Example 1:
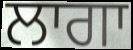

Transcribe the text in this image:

ਲਾਗਾ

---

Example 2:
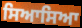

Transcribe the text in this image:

ਸਿਆਸਿਆ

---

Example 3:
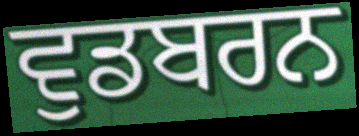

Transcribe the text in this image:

ਵੁਡਬਰਨ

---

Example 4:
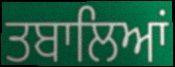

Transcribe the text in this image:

ਤਬਾਲਿਆਂ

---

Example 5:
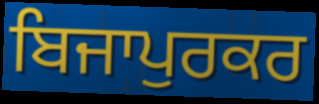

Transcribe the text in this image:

ਬਿਜਾਪੁਰਕਰ